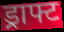
ड्राफ्ट